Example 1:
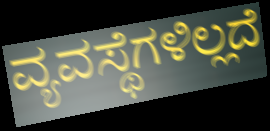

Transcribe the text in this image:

ವ್ಯವಸ್ಥೆಗಳಿಲ್ಲದೆ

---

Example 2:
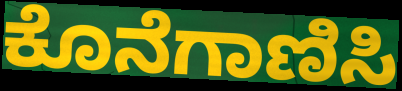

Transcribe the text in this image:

ಕೊನೆಗಾಣಿಸಿ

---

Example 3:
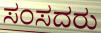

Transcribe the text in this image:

ಸಂಸದರು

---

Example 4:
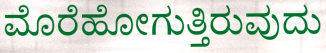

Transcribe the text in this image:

ಮೊರೆಹೋಗುತ್ತಿರುವುದು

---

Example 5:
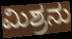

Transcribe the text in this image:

ಮಿಶ್ರನು